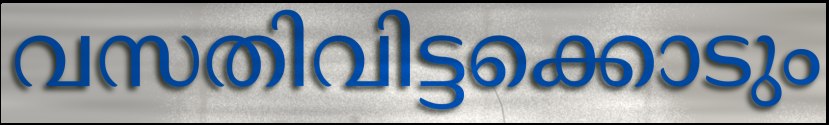
വസതിവിട്ടക്കൊടും